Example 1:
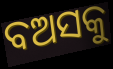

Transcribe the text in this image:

ବଅସକୁ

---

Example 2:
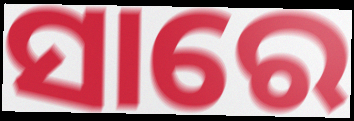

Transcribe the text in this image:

ସାରେ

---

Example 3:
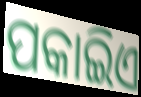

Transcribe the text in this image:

ପକାଇିଏ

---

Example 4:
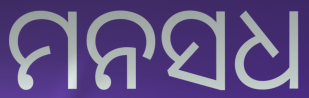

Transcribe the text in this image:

ମନସଧ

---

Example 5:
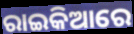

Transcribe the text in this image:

ରାଇକିଆରେ